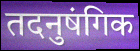
तदनुषंगिक